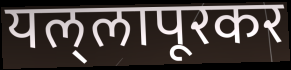
यल्लापूरकर